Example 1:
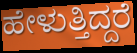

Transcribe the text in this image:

ಹೇಳುತ್ತಿದ್ದರೆ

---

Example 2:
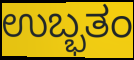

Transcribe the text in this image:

ಉಬ್ಭತಂ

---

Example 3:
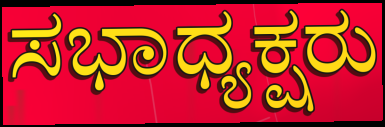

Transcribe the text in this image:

ಸಭಾಧ್ಯಕ್ಷರು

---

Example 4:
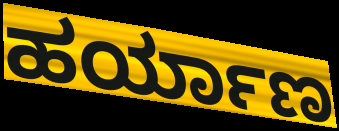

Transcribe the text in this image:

ಹರ್ಯಾಣ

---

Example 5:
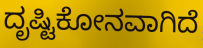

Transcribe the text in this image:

ದೃಷ್ಟಿಕೋನವಾಗಿದೆ